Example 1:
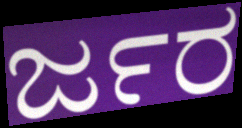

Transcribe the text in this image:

ರ್ಜರ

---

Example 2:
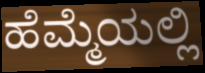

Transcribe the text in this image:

ಹೆಮ್ಮೆಯಲ್ಲಿ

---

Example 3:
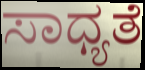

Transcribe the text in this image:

ಸಾಧ್ಯತೆ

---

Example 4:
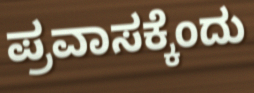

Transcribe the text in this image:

ಪ್ರವಾಸಕ್ಕೆಂದು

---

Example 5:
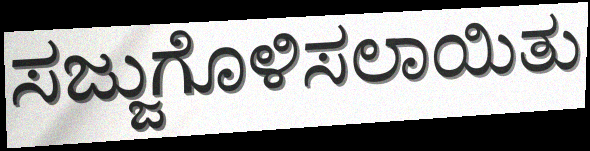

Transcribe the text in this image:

ಸಜ್ಜುಗೊಳಿಸಲಾಯಿತು